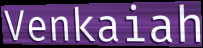
Venkaiah